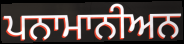
ਪਨਾਮਾਨੀਅਨ